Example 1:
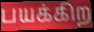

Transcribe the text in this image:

பயக்கிற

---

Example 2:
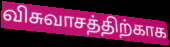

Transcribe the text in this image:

விசுவாசத்திற்காக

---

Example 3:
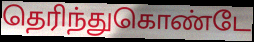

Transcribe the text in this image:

தெரிந்துகொண்டே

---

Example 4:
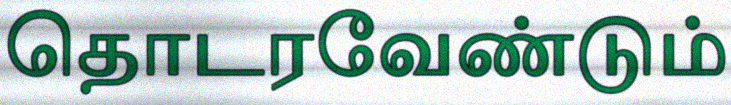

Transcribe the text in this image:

தொடரவேண்டும்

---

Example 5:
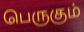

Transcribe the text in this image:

பெருகும்